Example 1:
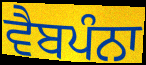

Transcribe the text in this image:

ਵੈਬਪੰਨਾ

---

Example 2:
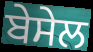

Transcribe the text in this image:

ਬੇਸੇਲ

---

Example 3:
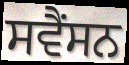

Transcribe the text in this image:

ਸਵੈਂਸਨ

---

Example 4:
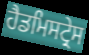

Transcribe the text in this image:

ਹੈਡਮਿਸਟ੍ਰੇਸ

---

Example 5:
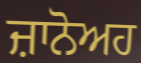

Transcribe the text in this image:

ਜ਼ਾਨੋਅਹ